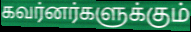
கவர்னர்களுக்கும்